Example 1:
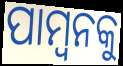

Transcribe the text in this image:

ପାମ୍ବନକୁ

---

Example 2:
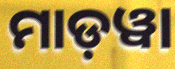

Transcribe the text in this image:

ମାଡ଼ୱା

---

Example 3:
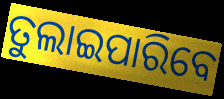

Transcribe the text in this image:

ତୁଲାଇପାରିବେ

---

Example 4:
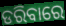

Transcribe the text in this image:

ଡରିବାରେ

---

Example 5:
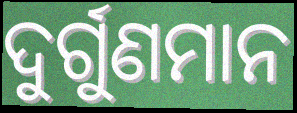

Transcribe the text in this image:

ଦୁର୍ଗୁଣମାନ